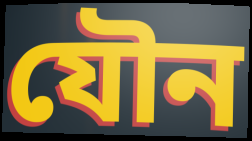
যৌন